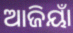
ଆଜିୟାଁ